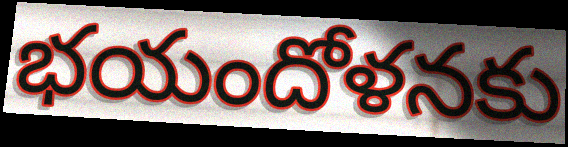
భయందోళనకు